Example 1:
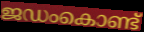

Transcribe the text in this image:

ജഡംകൊണ്ട്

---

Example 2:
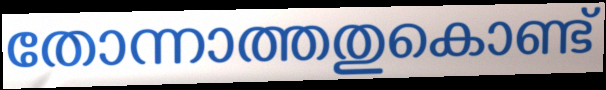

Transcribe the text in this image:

തോന്നാത്തതുകൊണ്ട്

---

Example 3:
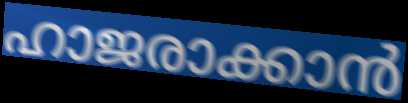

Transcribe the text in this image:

ഹാജരാക്കാൻ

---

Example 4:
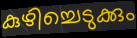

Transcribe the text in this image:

കുഴിച്ചെടുക്കും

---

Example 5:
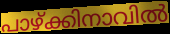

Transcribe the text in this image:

പാഴ്ക്കിനാവിൽ